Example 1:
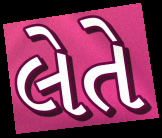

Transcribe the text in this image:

લેતે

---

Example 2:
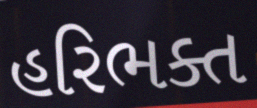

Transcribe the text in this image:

હરિભક્ત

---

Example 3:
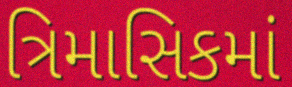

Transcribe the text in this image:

ત્રિમાસિકમાં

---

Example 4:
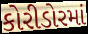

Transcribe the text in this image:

કોરીડોરમાં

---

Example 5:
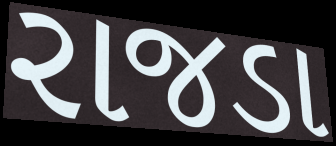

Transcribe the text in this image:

રાજડા